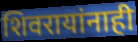
शिवरायांनाही